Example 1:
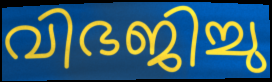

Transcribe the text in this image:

വിഭജിച്ചു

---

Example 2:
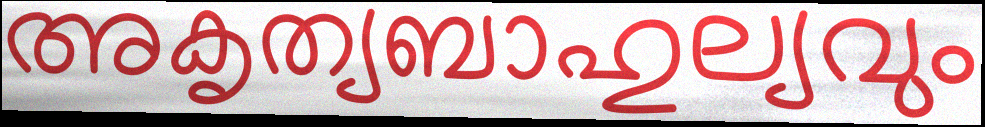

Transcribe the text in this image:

അകൃത്യബാഹുല്യവും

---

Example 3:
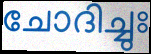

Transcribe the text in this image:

ചോദിച്ചുഃ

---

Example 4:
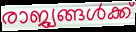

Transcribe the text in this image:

രാജ്യങ്ങൾക്ക്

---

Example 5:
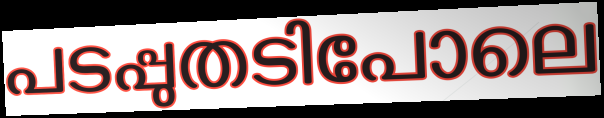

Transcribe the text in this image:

പടപ്പുതടിപോലെ